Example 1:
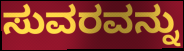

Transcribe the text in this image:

ಸುವರವನ್ನು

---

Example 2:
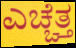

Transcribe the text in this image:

ಎಚ್ಚೆತ್ತ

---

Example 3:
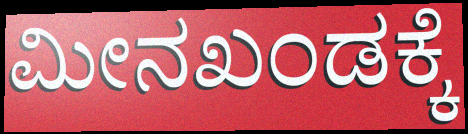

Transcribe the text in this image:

ಮೀನಖಂಡಕ್ಕೆ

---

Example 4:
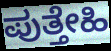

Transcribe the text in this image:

ಪುತ್ತೇಹಿ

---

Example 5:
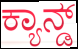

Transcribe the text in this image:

ಕ್ಯಾನ್ಡ್